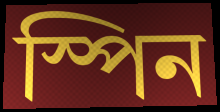
স্পিন